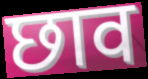
छाव